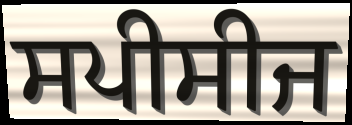
ਸਪੀਸੀਜ